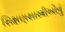
શિક્ષણશાસ્ત્રીઓનું